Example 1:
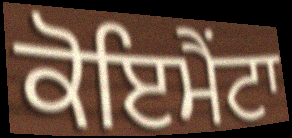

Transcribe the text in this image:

ਕੋਇਮੈਂਟਾ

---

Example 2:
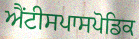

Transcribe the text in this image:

ਐਂਟੀਸਪਾਸਪੋਡਿਕ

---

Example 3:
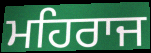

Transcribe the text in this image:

ਮਹਿਰਾਜ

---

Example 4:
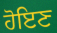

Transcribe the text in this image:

ਹੋਇਣ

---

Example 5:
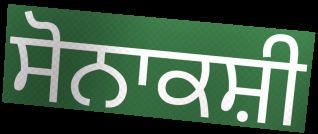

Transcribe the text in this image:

ਸੋਨਾਕਸ਼ੀ